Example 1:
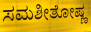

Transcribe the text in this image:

ಸಮಶೀತೋಷ್ಣ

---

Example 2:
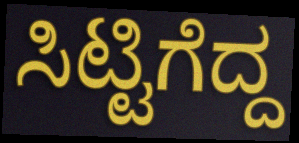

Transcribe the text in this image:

ಸಿಟ್ಟಿಗೆದ್ದ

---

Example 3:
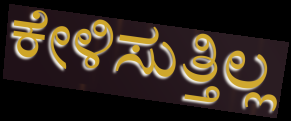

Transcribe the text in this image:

ಕೇಳಿಸುತ್ತಿಲ್ಲ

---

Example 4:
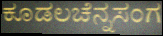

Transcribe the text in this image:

ಕೂಡಲಚೆನ್ನಸಂಗ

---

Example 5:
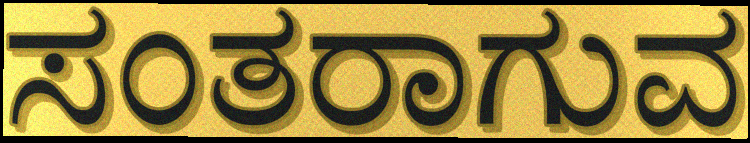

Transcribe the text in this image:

ಸಂತರಾಗುವ